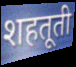
शहतूती